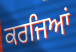
ਕਰਜਿਆਂ